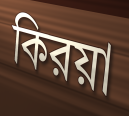
কিরয়া